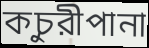
কচুরীপানা